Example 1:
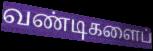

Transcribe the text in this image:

வண்டிகளைப்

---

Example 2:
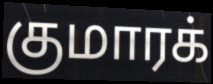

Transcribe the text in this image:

குமாரக்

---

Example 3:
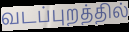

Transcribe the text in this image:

வடப்புறத்தில்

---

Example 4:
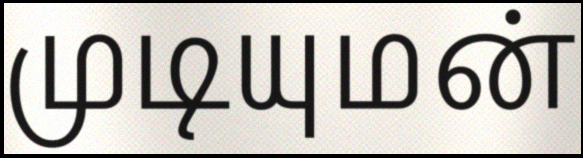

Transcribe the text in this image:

முடியுமன்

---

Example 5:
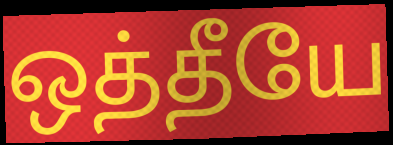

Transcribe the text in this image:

ஒத்தீயே